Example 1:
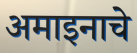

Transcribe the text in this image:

अमाइनाचे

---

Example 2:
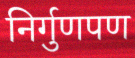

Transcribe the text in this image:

निर्गुणपण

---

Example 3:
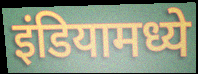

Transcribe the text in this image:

इंडियामध्ये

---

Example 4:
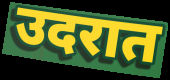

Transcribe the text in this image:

उदरात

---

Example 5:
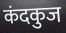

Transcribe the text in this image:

कंदकुज